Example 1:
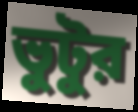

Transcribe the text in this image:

ভুটুর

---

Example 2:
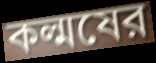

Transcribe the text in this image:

কল্মষের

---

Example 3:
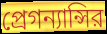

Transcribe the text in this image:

প্রেগন্যান্সির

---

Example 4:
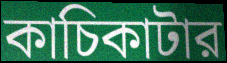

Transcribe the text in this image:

কাচিকাটার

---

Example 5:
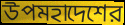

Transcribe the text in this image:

উপমহাদেশের